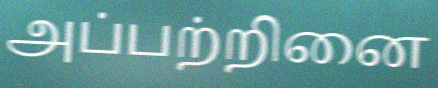
அப்பற்றினை